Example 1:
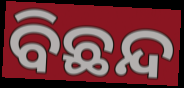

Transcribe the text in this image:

ବିଛନ୍ଦ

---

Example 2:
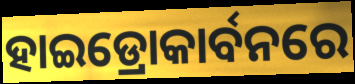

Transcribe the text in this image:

ହାଇଡ୍ରୋକାର୍ବନରେ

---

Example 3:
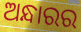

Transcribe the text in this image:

ଅନ୍ଧାରର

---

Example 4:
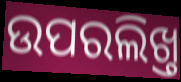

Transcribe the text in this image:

ଉପରଲିଖ୍ତ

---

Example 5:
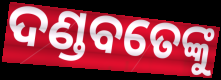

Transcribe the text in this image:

ଦଣ୍ଡବତେଙ୍କୁ